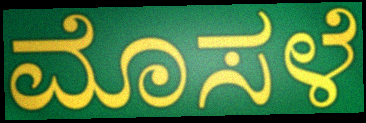
ಮೊಸಳೆ